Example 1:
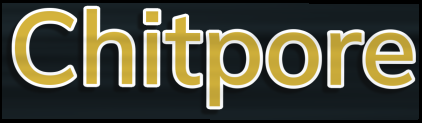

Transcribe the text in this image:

Chitpore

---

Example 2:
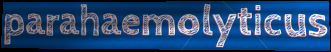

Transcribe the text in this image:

parahaemolyticus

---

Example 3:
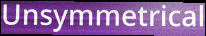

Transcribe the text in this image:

Unsymmetrical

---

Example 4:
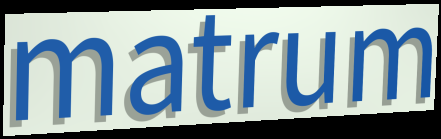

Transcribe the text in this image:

matrum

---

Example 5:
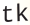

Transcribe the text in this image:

tk